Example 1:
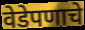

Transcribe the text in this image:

वेडेपणाचे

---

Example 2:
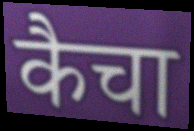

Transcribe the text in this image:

कैचा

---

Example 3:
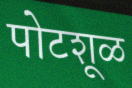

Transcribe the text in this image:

पोटशूळ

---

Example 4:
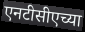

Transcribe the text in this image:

एनटीसीएच्या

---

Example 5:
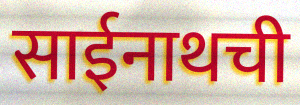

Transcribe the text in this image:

साईनाथची